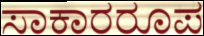
ಸಾಕಾರರೂಪ